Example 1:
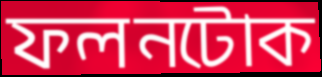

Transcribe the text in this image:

ফলনটোক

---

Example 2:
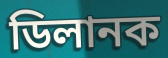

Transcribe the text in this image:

ডিলানক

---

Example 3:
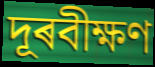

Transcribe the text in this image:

দূৰবীক্ষণ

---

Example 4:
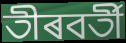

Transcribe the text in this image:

তীৰবৰ্তী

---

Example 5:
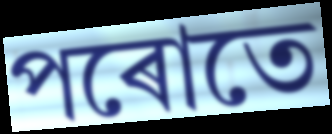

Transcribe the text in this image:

পৰোতে